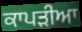
ਕਾਪੜੀਆ